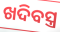
ଖଦିବସ୍ତ୍ର